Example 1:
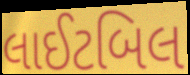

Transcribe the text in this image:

લાઈટબિલ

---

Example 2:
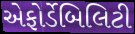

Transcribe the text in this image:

એફોર્ડેબિલિટી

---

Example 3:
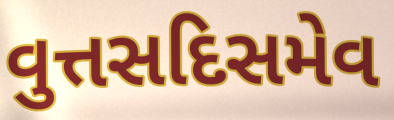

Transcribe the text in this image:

વુત્તસદિસમેવ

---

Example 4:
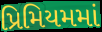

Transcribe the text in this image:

પ્રિમિયમમાં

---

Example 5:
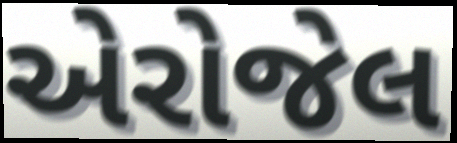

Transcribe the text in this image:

એરોજેલ